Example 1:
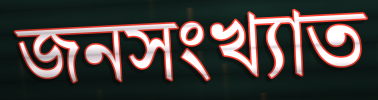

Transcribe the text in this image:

জনসংখ্যাত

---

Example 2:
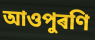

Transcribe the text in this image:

আওপুৰণি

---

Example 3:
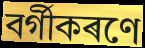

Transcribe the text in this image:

বৰ্গীকৰণে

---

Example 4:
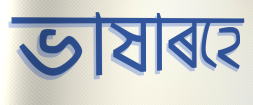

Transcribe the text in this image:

ভাষাৰহে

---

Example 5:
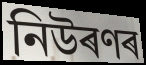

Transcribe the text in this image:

নিউৰণৰ